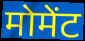
मोमेंट